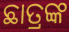
ଛାତ୍ରଙ୍କ